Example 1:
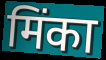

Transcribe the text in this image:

मिंका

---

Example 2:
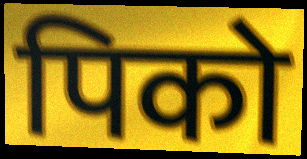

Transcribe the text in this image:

पिको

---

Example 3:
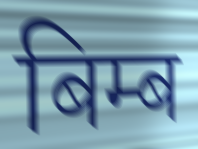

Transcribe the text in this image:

बिम्ब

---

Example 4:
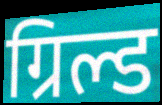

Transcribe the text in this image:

ग्रिल्ड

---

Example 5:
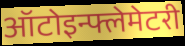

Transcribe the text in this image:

ऑटोइन्फ्लेमेटरी